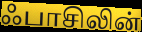
ஃபாசிலின்